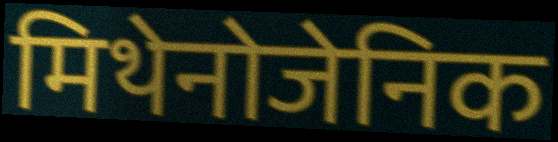
मिथेनोजेनिक